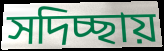
সদিচ্ছায়